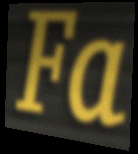
Fa